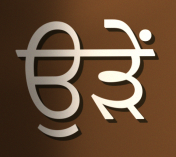
ਉੜੇਂ